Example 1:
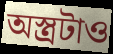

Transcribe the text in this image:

অস্ত্রটাও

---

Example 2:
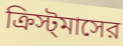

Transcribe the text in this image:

ক্রিস্ট্‌মাসের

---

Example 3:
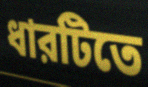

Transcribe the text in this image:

ধারটিতে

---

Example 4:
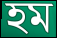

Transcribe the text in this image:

হম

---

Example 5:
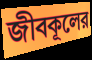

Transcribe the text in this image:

জীবকূলের